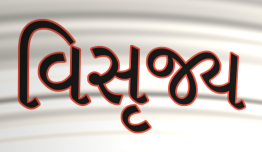
વિસૃજ્ય